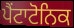
ਪੈਂਟਾਟੋਨਿਕ